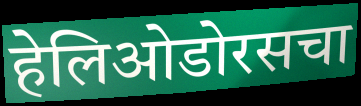
हेलिओडोरसचा